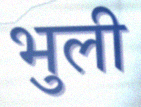
भुली